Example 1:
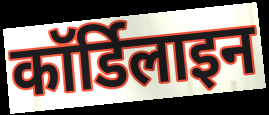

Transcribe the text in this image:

कॉर्डिलाइन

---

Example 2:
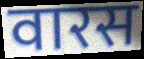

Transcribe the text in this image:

वारस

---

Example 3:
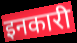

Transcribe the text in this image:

इनकारी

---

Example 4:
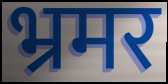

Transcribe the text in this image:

भ्रमर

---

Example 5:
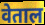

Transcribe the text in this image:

वेताल